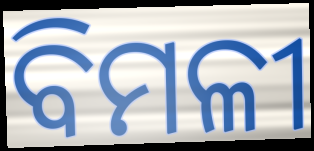
ବିମଳୀ